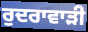
ਰੁਦਰਾਵਾੜੀ